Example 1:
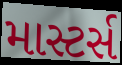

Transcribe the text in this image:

માસ્ટર્સ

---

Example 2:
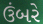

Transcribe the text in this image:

ઉંબરે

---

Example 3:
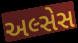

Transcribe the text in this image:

અલ્સેસ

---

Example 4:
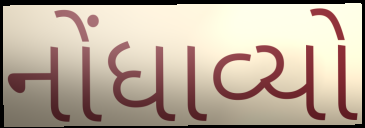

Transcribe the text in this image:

નોંધાવ્યો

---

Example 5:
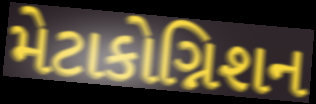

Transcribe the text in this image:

મેટાકોગ્નિશન